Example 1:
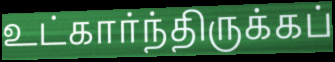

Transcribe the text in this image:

உட்கார்ந்திருக்கப்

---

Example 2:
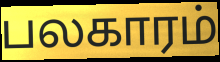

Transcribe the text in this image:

பலகாரம்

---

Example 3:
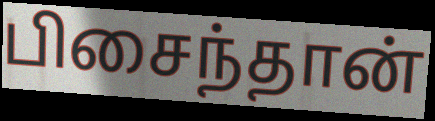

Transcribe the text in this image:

பிசைந்தான்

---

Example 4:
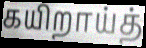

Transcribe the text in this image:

கயிறாய்த்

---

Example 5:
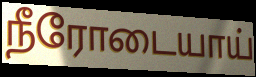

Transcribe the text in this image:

நீரோடையாய்